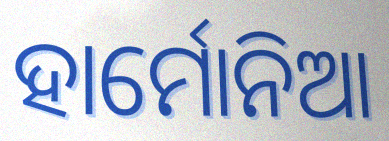
ହାର୍ମୋନିଆ